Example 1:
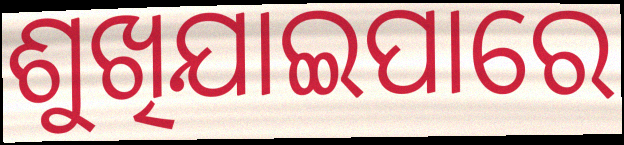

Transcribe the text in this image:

ଶୁଖିଯାଇପାରେ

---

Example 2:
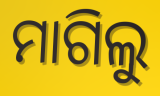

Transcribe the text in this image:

ମାଗିଲୁ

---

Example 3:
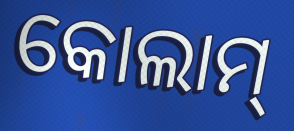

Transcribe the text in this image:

କୋଲାମ୍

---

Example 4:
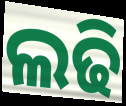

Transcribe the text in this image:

ଲଢି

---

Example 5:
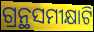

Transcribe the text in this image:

ଗ୍ରନ୍ଥସମୀକ୍ଷାଟି